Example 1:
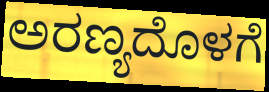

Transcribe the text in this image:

ಅರಣ್ಯದೊಳಗೆ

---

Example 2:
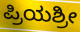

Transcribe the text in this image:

ಪ್ರಿಯಶ್ರೀ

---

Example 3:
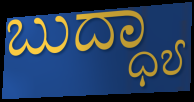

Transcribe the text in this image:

ಬುದ್ಧ್ಯಾ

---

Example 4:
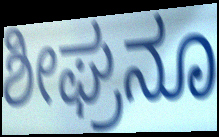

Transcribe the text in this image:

ಶೀಘ್ರನೂ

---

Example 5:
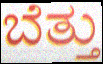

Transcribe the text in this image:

ಬೆತ್ತು